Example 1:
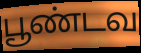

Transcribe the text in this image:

பூண்டவ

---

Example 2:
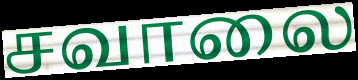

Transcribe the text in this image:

சவாலை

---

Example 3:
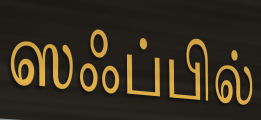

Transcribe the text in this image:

ஸஃப்பில்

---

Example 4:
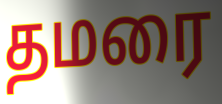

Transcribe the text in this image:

தமரை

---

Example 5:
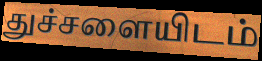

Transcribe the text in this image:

துச்சளையிடம்